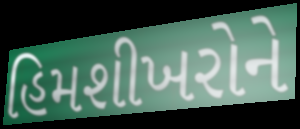
હિમશીખરોને